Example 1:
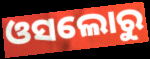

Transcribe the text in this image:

ଓସଲୋରୁ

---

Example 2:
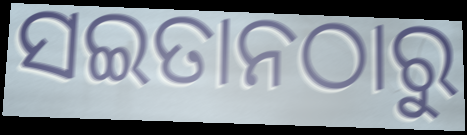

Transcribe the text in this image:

ସଇତାନଠାରୁ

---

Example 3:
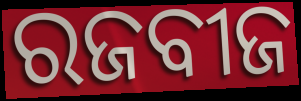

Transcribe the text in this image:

ରଜବୀଜ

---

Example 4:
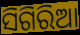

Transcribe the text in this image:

ସିଗିରିଆ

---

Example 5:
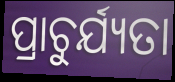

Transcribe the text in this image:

ପ୍ରାଚୁର୍ଯ୍ୟତା